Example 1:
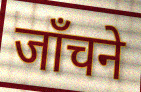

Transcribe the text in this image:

जाँचने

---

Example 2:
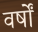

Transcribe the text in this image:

वर्षों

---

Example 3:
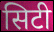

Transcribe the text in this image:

सिटी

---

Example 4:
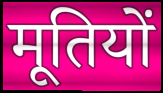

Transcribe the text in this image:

मूतियों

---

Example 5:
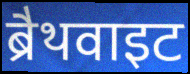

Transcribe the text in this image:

ब्रैथवाइट